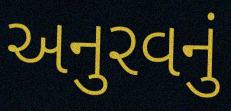
અનુરવનું